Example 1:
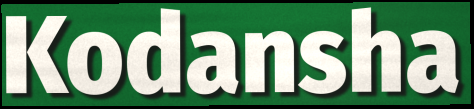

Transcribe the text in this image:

Kodansha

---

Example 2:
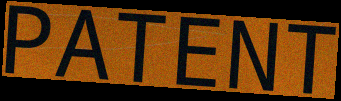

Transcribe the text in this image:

PATENT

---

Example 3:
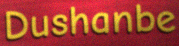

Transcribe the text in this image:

Dushanbe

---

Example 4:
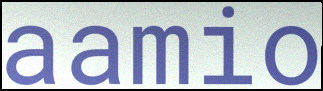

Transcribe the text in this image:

aamio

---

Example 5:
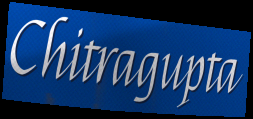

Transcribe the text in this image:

Chitragupta